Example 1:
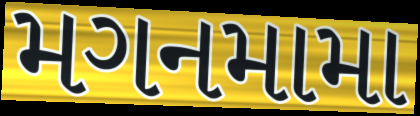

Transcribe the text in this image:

મગનમામા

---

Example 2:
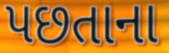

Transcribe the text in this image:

પછતાના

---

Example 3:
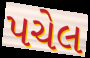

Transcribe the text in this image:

પચેલ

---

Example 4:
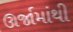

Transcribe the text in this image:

ઊર્જામાંથી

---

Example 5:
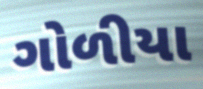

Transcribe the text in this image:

ગોળીયા